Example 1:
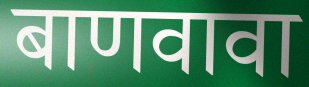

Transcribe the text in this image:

बाणवावा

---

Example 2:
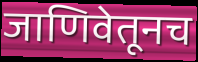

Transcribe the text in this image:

जाणिवेतूनच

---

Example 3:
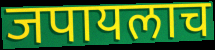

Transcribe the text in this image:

जपायलाच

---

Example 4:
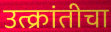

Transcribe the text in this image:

उत्क्रांतीचा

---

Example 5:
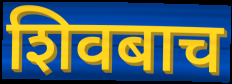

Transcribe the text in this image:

शिवबाच